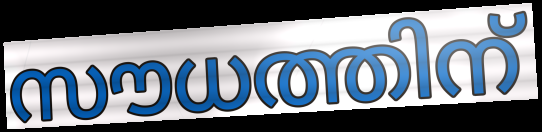
സൗധത്തിന്